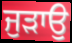
ਜੁੜਾਉ